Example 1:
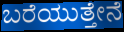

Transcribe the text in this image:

ಬರೆಯುತ್ತೇನೆ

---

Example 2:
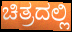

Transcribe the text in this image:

ಚಿತ್ರದಲ್ಲಿ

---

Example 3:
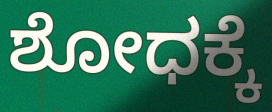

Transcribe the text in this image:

ಶೋಧಕ್ಕೆ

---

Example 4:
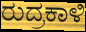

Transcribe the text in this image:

ರುದ್ರಕಾಳಿ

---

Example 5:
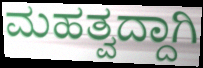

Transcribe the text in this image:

ಮಹತ್ವದ್ದಾಗಿ